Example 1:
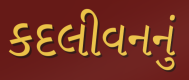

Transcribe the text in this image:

કદલીવનનું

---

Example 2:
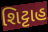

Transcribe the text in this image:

શિટ્ટાહ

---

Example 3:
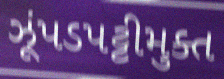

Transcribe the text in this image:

ઝૂંપડપટ્ટીમુક્ત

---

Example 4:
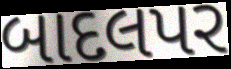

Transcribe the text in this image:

બાદલપર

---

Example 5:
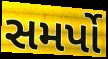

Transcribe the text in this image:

સમર્પો